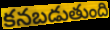
కనబడుతుంది